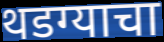
थडग्याचा